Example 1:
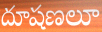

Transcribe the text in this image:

దూషణలూ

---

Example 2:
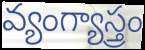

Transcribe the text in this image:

వ్యంగ్యాస్త్రం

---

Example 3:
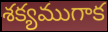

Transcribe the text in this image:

శక్యముగాక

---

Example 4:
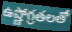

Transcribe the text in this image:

ఉష్ణోగ్రతలతో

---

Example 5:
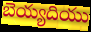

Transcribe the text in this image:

బెయ్యదియు